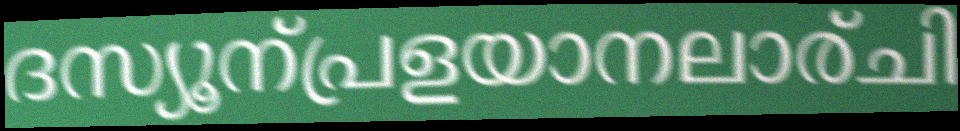
ദസ്യൂന്പ്രളയാനലാര്ചി